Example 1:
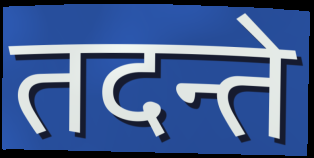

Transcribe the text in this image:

तदन्ते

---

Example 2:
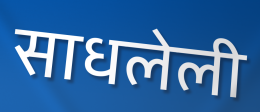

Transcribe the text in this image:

साधलेली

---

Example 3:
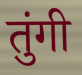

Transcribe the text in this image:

तुंगी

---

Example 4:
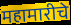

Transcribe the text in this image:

महामारीचे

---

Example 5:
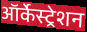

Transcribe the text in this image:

ऑर्केस्ट्रेशन